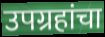
उपग्रहांचा